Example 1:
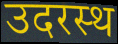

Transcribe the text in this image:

उदरस्थ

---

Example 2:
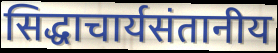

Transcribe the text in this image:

सिद्धाचार्यसंतानीय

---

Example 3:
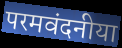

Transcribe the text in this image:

परमवंदनीया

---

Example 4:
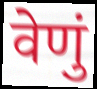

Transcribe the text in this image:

वेणुं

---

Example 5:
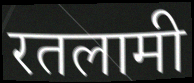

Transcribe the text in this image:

रतलामी